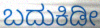
ಬದುಕಿಡೀ